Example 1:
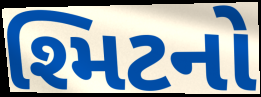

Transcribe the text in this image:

શ્મિટનો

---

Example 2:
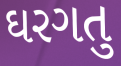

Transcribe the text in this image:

ઘરગતુ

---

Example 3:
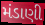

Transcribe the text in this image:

મંડાણી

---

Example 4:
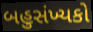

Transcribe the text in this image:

બહુસંખ્યકો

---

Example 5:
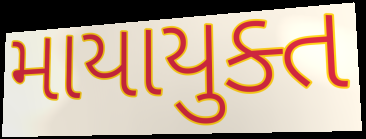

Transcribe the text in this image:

માયાયુક્ત